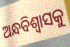
ଅନ୍ଧବିଶ୍ୱାସକୁ